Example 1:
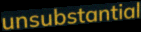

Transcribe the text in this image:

unsubstantial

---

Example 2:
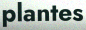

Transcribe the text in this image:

plantes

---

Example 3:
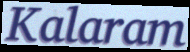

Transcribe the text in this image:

Kalaram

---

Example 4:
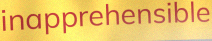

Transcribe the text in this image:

inapprehensible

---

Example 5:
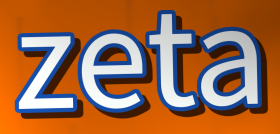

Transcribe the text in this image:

zeta